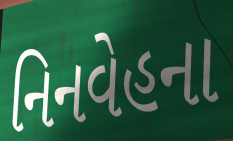
નિનવેહના